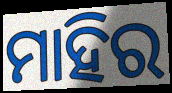
ମାହିର